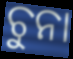
ଚୁନା